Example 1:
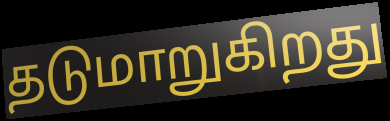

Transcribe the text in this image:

தடுமாறுகிறது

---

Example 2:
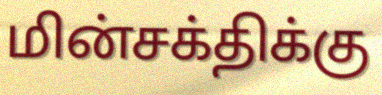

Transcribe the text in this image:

மின்சக்திக்கு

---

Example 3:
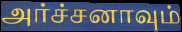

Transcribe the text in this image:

அர்ச்சனாவும்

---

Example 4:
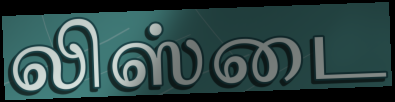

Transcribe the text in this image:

லிஸ்டை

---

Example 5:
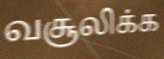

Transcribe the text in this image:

வசூலிக்க